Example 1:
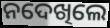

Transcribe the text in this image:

ନଦେଖିଲେ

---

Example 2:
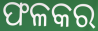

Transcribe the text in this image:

ଫଳକର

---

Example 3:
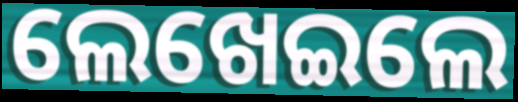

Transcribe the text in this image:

ଲେଖେଇଲେ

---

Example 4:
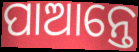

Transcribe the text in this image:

ପାଆନ୍ତେ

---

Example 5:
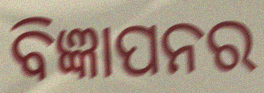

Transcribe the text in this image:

ବିଜ୍ଞାପନର